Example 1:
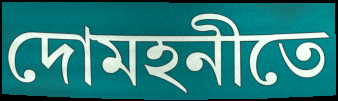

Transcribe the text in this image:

দোমহনীতে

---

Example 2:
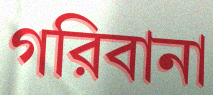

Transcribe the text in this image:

গরিবানা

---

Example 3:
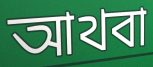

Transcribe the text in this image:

আথবা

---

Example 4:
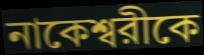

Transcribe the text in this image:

নাকেশ্বরীকে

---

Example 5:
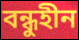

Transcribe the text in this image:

বন্ধুহীন